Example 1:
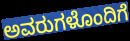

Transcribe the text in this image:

ಅವರುಗಳೊಂದಿಗೆ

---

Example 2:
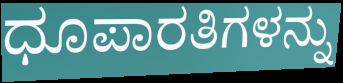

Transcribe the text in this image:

ಧೂಪಾರತಿಗಳನ್ನು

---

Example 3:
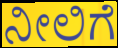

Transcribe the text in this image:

ನೀಲಿಗೆ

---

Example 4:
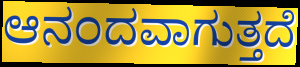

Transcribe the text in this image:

ಆನಂದವಾಗುತ್ತದೆ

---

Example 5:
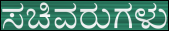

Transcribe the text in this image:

ಸಚಿವರುಗಳು